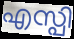
എസ്പി